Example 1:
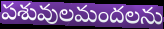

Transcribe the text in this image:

పశువులమందలను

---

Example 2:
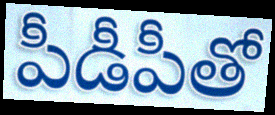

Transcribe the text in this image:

పీడీపీతో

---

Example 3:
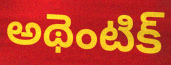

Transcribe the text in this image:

అథెంటిక్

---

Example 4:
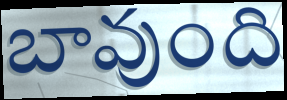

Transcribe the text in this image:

బావుంది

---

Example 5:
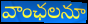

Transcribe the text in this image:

వాంఛలనూ